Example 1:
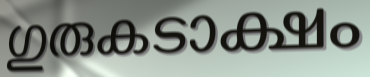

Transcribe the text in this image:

ഗുരുകടാക്ഷം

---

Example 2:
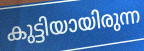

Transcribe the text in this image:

കുട്ടിയായിരുന്ന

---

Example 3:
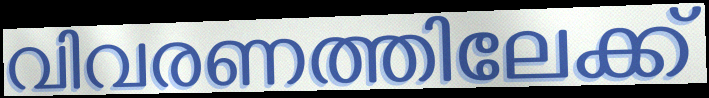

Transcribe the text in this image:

വിവരണത്തിലേക്ക്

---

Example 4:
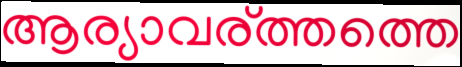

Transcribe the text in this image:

ആര്യാവര്ത്തത്തെ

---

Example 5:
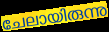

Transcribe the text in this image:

ചേലായിരുന്നു